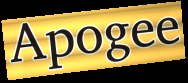
Apogee